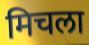
मिचला